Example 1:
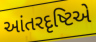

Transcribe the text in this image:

આંતરદૃષ્ટિએ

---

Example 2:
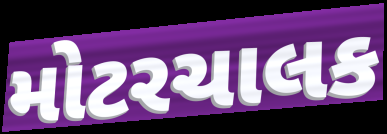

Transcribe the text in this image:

મોટરચાલક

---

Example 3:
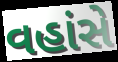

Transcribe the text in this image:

વહાંસે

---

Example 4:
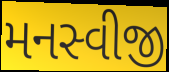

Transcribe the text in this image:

મનસ્વીજી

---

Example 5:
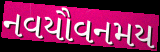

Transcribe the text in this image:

નવયૌવનમય